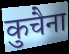
कुचैना